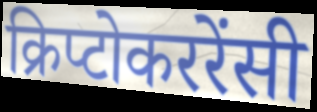
क्रिप्टोकररेंसी